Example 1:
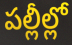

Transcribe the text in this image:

పల్లీల్లో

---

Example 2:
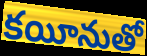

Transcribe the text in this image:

కయీనుతో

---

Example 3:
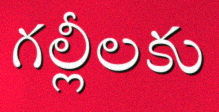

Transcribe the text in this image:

గల్లీలకు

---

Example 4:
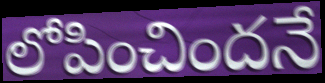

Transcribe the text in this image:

లోపించిందనే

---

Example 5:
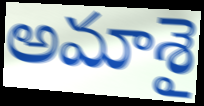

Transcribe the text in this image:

అమాశై